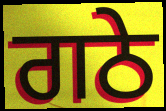
ਗਠੇ